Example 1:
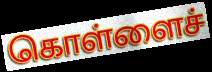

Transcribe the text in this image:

கொள்ளைச்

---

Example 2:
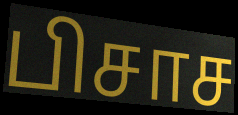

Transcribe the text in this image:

பிசாச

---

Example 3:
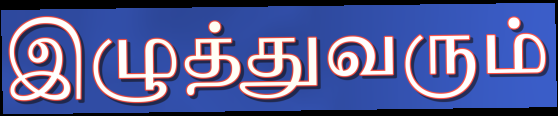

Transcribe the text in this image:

இழுத்துவரும்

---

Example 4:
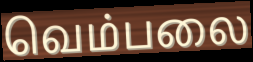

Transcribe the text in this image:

வெம்பலை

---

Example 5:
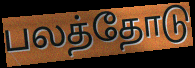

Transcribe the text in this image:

பலத்தோடு